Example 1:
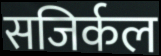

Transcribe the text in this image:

सजिर्कल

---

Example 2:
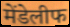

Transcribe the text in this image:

मेंडेलीफ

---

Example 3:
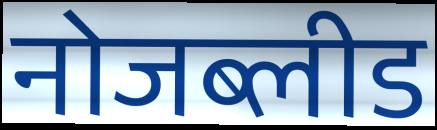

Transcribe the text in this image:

नोजब्लीड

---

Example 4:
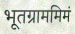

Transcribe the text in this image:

भूतग्राममिमं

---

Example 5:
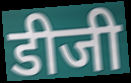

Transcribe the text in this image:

डीजी